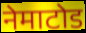
नेमाटोड